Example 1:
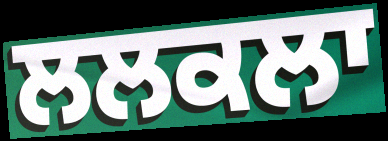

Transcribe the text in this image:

ਲਲਕਲਾ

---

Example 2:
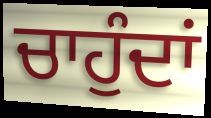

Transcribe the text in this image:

ਚਾਹੁੰਦਾਂ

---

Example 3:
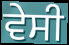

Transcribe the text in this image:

ਵੇਸੀ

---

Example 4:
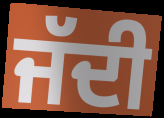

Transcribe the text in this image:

ਜੱਦੀ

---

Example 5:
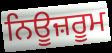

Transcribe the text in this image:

ਨਿਊਜ਼ਰੂਮ